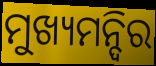
ମୁଖ୍ୟମନ୍ଦିର